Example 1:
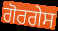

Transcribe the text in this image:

ਗੋਰਗੇਸ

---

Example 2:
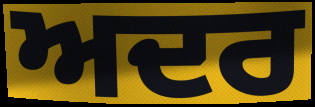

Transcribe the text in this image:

ਅਦਰ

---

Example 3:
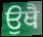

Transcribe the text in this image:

ਉਥੈ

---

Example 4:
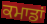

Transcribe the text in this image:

ਕਮਾਡਾਂ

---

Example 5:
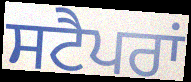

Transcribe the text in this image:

ਸਟੈਪਰਾਂ